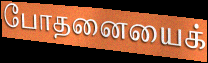
போதனையைக்